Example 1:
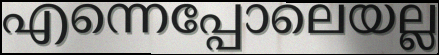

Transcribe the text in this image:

എന്നെപ്പോലെയല്ല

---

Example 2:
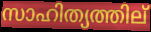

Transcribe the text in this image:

സാഹിത്യത്തില്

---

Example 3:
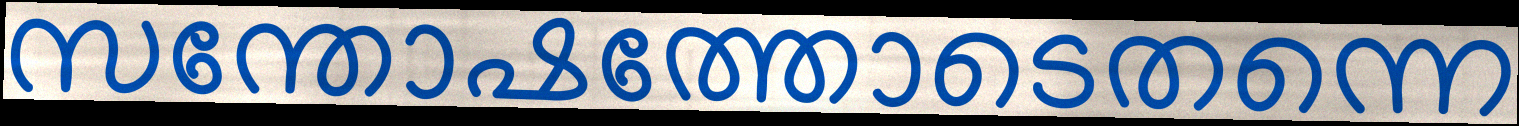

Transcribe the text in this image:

സന്തോഷത്തോടെതന്നെ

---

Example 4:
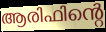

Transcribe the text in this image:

ആരിഫിന്റെ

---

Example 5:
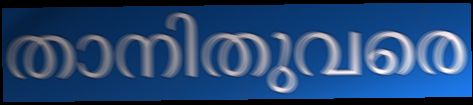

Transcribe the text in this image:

താനിതുവരെ